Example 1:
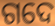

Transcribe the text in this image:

ଗଦେ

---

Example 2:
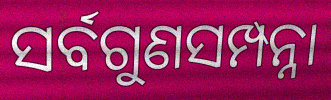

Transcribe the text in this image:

ସର୍ବଗୁଣସମ୍ପନ୍ନା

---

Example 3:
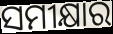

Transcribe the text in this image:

ସମୀକ୍ଷାର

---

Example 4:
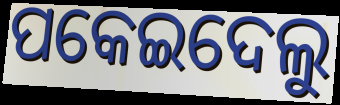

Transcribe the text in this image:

ପକେଇଦେଲୁ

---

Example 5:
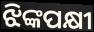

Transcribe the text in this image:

ଝିଙ୍କପକ୍ଷୀ